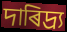
দাৰিদ্ৰ্য